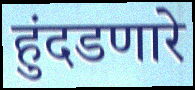
हुंदडणारे